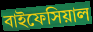
বাইফেসিয়াল